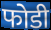
फोडी